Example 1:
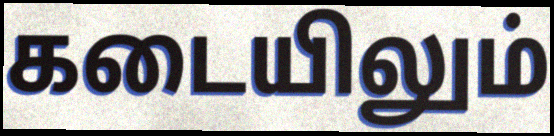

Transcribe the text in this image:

கடையிலும்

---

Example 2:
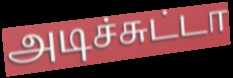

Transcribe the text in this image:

அடிச்சுட்டா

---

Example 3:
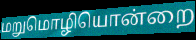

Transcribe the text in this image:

மறுமொழியொன்றை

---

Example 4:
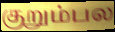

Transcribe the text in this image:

குறும்பல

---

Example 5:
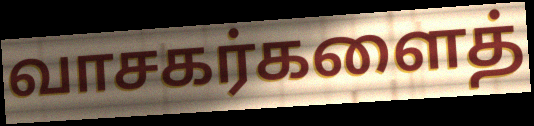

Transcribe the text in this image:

வாசகர்களைத்